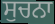
ਸੁਚਨਾ